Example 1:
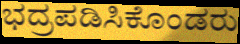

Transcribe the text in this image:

ಭದ್ರಪಡಿಸಿಕೊಂಡರು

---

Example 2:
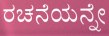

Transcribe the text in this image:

ರಚನೆಯನ್ನೇ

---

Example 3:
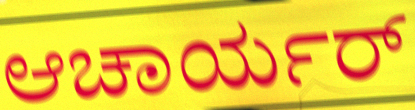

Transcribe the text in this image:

ಆಚಾರ್ಯರ್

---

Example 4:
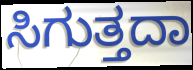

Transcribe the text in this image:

ಸಿಗುತ್ತದಾ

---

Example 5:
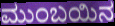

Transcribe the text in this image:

ಮುಂಬಯಿನ